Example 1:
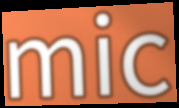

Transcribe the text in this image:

mic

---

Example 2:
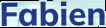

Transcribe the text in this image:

Fabien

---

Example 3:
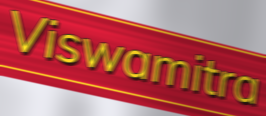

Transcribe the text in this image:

Viswamitra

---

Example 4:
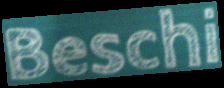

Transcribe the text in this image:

Beschi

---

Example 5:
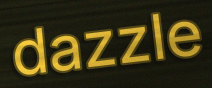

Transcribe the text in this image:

dazzle